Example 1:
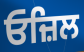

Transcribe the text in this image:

ਓਜ਼ਿਲ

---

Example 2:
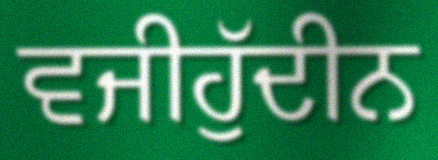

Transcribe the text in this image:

ਵਜੀਹੁੱਦੀਨ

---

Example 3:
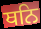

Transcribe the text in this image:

ਥਨਿ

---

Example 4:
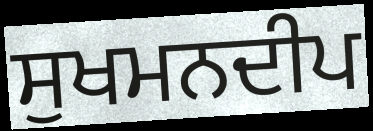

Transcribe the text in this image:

ਸੁਖਮਨਦੀਪ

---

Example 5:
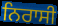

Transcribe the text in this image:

ਨਿਰਾਸੀ